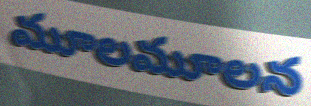
మూలమూలన